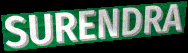
SURENDRA